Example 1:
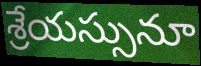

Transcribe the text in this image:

శ్రేయస్సునూ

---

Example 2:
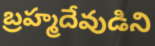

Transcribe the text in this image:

బ్రహ్మదేవుడిని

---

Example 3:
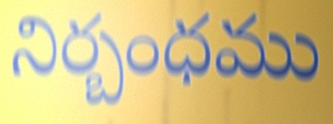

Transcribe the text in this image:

నిర్బంధము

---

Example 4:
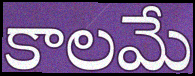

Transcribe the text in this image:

కాలమే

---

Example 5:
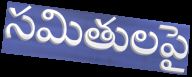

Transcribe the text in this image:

సమితులపై